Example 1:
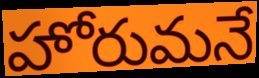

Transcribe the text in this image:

హోరుమనే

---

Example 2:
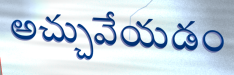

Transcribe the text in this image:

అచ్చువేయడం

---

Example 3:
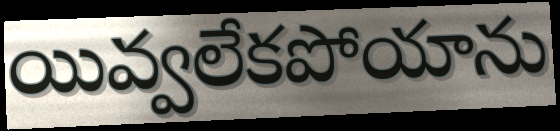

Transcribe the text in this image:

యివ్వలేకపోయాను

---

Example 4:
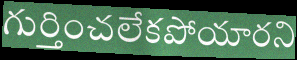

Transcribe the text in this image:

గుర్తించలేకపోయారని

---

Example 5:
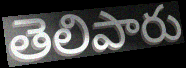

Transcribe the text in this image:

తెలిపారు